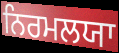
ਨਿਰਮਲਯਾ